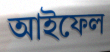
আইফেল